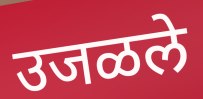
उजळले